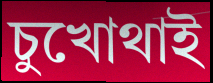
চুখোথাই